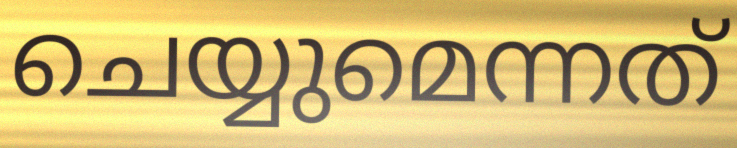
ചെയ്യുമെന്നത്